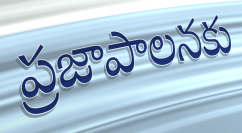
ప్రజాపాలనకు